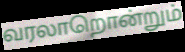
வரலாறொன்றும்